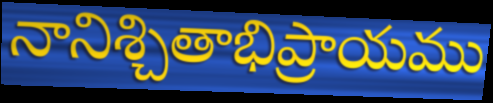
నానిశ్చితాభిప్రాయము